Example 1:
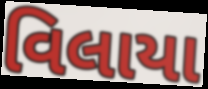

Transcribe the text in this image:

વિલાયા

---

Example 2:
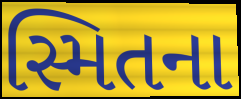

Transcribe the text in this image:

સ્મિતના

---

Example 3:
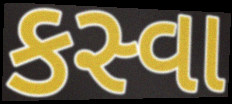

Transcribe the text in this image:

કસ્વા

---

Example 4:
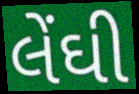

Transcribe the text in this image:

લેંઘી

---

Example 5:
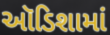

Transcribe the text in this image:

ઑડિશામાં